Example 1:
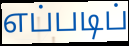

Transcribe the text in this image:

எப்படிப்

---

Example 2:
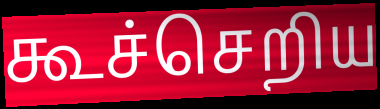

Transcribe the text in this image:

கூச்செறிய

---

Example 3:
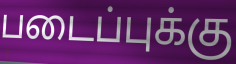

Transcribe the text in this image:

படைப்புக்கு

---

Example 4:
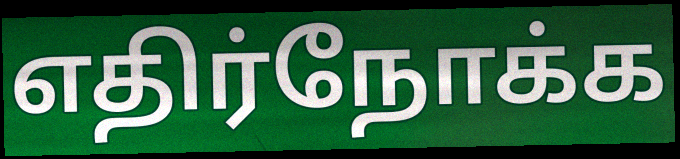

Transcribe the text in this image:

எதிர்நோக்க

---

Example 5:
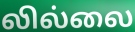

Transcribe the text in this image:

லில்லை